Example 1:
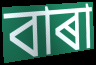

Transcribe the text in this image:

বাৰা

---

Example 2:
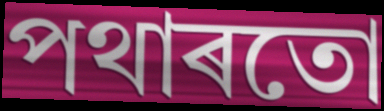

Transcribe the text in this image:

পথাৰতো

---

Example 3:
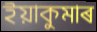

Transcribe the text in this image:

ইয়াকুমাৰ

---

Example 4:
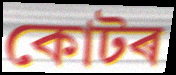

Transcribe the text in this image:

কোটৰ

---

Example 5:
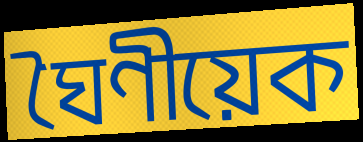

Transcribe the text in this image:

ঘৈণীয়েক